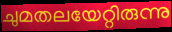
ചുമതലയേറ്റിരുന്നു